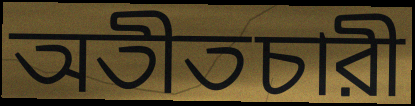
অতীতচারী